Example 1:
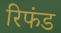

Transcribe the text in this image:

रिफंड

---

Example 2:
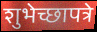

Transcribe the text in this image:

शुभेच्छापत्रे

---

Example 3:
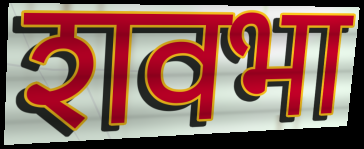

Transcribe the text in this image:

शवभा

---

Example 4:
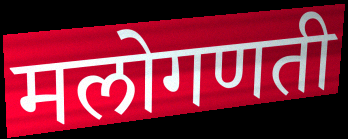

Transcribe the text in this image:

मलोगणती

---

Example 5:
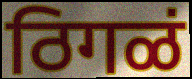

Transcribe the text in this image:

ठिगळं